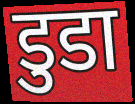
डुडा